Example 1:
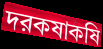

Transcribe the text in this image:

দরকষাকষি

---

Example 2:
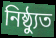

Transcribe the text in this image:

নিষ্ঠ্যুত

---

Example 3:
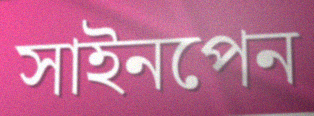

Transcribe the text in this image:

সাইনপেন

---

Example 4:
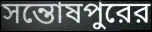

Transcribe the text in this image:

সন্তোষপুরের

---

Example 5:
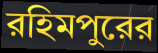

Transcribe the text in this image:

রহিমপুরের